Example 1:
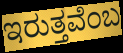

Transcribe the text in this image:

ಇರುತ್ತವೆಂಬ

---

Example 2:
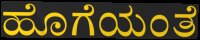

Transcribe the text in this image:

ಹೊಗೆಯಂತೆ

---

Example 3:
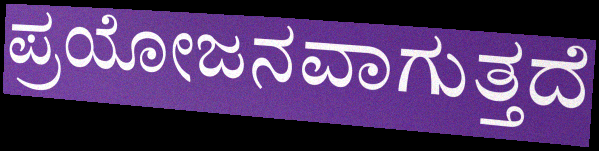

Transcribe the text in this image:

ಪ್ರಯೋಜನವಾಗುತ್ತದೆ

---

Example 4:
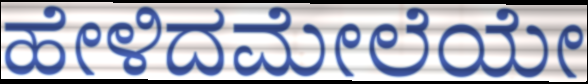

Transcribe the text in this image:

ಹೇಳಿದಮೇಲೆಯೇ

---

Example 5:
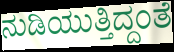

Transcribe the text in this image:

ನುಡಿಯುತ್ತಿದ್ದಂತೆ